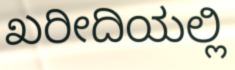
ಖರೀದಿಯಲ್ಲಿ